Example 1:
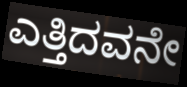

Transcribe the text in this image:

ಎತ್ತಿದವನೇ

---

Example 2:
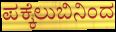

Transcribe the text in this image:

ಪಕ್ಕೆಲುಬಿನಿಂದ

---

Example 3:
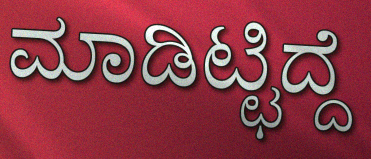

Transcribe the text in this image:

ಮಾಡಿಟ್ಟಿದ್ದೆ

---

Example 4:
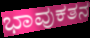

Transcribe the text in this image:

ಭಾವುಕತನ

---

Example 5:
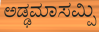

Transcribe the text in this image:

ಅಡ್ಢಮಾಸಮ್ಪಿ